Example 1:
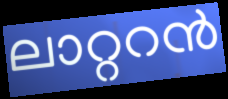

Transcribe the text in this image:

ലാറ്ററൻ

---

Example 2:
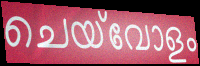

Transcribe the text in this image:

ചെയ്‌വോളം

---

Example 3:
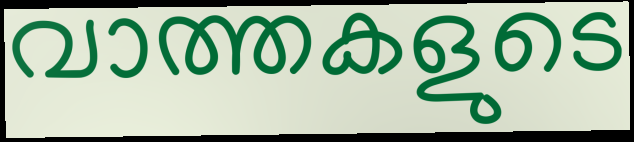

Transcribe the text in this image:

വാത്തകളുടെ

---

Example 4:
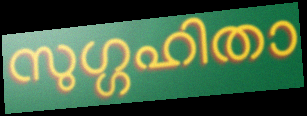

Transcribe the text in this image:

സുഗ്ഗഹിതാ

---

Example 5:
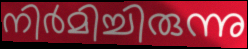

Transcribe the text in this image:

നിർമിച്ചിരുന്നു